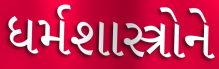
ધર્મશાસ્ત્રોને